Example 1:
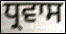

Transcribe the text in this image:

ਧ੍ਰਵਾਸ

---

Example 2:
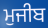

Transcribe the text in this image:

ਮੁਜੀਬ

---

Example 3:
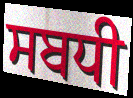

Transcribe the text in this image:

ਸਬਧੀ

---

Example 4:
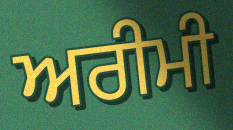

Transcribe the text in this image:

ਅਰੀਮੀ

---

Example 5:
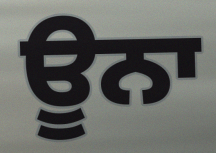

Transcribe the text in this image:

ਊਨਾ